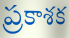
ప్రకాశక